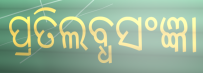
ପ୍ରତିଲବ୍ଧସଂଜ୍ଞା